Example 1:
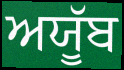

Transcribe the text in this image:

ਅਯੂੱਬ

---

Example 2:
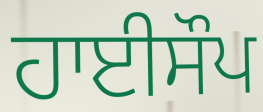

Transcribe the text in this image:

ਹਾਈਸੌਪ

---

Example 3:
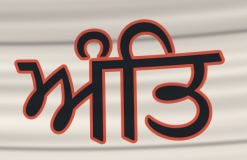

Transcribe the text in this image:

ਅੰਤਿ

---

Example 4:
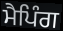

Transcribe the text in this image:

ਮੈਪਿੰਗ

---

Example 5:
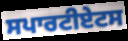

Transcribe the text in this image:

ਸਪਾਰਟੀਏਟਸ